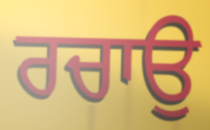
ਰਚਾਉ